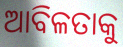
ଆବିଳତାକୁ